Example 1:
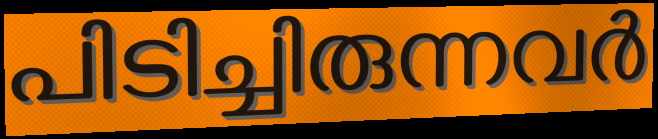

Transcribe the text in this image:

പിടിച്ചിരുന്നവർ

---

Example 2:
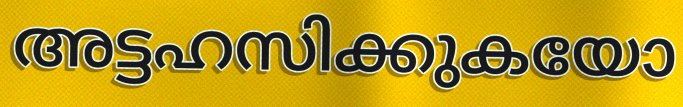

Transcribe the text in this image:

അട്ടഹസിക്കുകയോ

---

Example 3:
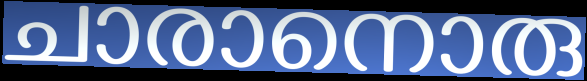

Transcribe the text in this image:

ചാരാനൊരു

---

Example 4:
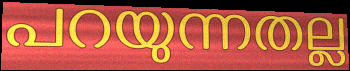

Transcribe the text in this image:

പറയുന്നതല്ല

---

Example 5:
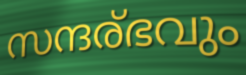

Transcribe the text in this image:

സന്ദര്ഭവും